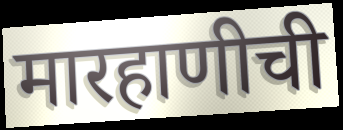
मारहाणीची